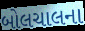
બોલચાલના